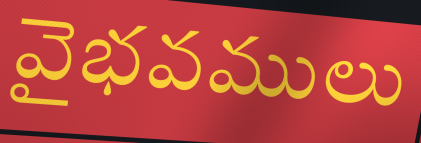
వైభవములు